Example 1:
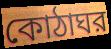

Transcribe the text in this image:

কোঠাঘর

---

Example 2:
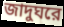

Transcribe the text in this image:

জাদুঘরে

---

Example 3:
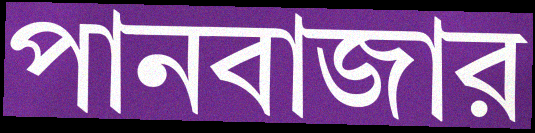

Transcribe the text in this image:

পানবাজার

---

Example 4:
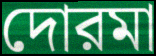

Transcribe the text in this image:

দোরমা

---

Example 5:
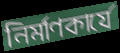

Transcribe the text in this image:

নির্মাণকার্যে